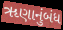
ૠણાનુંબંધ